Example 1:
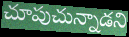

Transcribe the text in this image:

చూపుచున్నాడని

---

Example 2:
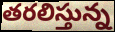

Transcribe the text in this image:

తరలిస్తున్న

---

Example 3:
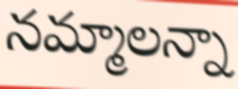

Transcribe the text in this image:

నమ్మాలన్నా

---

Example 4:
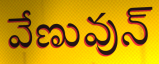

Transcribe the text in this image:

వేణువున్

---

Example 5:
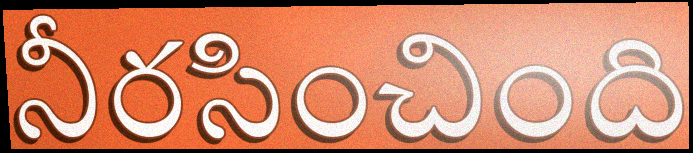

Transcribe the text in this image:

నీరసించింది